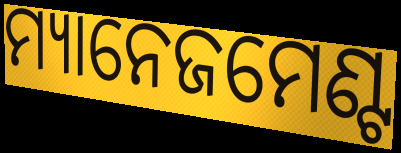
ମ୍ୟାନେଜମେଣ୍ଟ